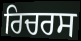
ਰਿਚਰਸ